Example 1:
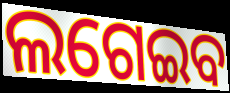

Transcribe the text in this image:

ଲଗେଇବ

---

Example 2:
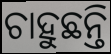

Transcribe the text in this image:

ଚାହୁଛନ୍ତି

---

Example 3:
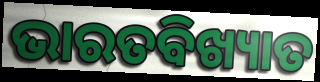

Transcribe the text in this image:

ଭାରତବିଖ୍ୟାତ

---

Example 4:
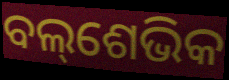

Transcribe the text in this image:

ବଲ୍‌ଶେଭିକ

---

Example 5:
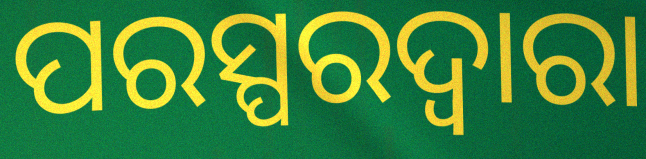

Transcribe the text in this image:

ପରସ୍ପରଦ୍ୱାରା